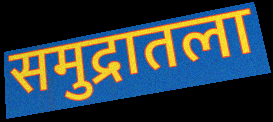
समुद्रातला